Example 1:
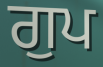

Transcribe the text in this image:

ਗੁਪ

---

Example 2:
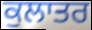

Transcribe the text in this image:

ਕੁਲਾਤਰ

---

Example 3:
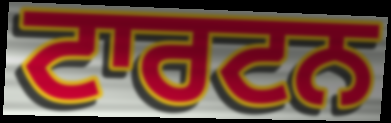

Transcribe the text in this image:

ਟਾਰਟਨ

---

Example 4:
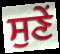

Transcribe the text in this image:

ਸੁਣੇਂ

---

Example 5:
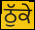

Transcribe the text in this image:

ਠੁੱਕੇ